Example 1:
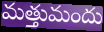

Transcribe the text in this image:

మత్తుమందు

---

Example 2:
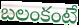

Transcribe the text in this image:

బలంకంటే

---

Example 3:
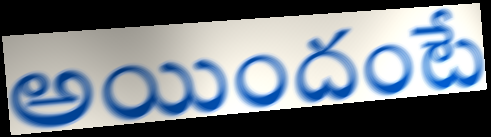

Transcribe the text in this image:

అయిందంటే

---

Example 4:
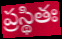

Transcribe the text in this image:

ప్రస్థితః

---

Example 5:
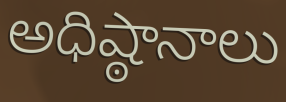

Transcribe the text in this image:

అధిష్ఠానాలు